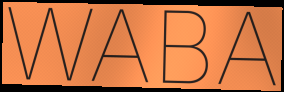
WABA